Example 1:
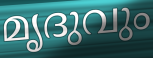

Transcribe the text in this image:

മൃദുവും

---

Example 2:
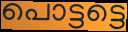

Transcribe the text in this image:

പൊട്ടട്ടെ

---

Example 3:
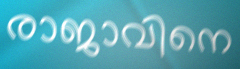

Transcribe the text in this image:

രാജാവിനെ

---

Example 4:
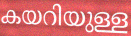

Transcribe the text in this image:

കയറിയുള്ള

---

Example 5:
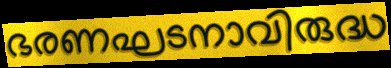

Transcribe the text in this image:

ഭരണഘടനാവിരുദ്ധ